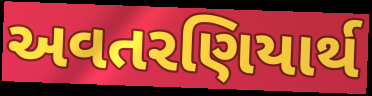
અવતરણિયાર્થ